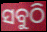
ସବୁଠି